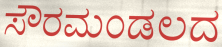
ಸೌರಮಂಡಲದ